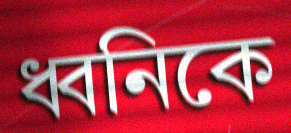
ধ্বনিকে